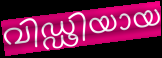
വിഡ്ഢിയായ